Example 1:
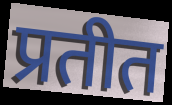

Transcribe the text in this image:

प्रतीत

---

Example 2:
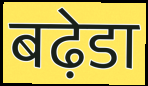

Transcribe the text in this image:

बढ़ेडा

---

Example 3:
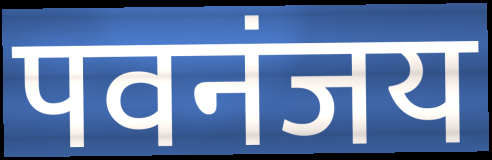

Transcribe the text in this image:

पवनंजय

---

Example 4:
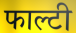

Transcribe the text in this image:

फाल्टी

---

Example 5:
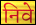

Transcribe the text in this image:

निवे